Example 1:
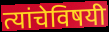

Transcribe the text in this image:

त्यांचेविषयी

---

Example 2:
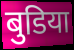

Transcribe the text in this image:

बुडिया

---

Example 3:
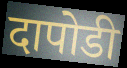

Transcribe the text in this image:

दापोडी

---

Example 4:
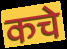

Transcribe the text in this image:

कचे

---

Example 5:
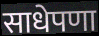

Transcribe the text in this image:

साधेपणा